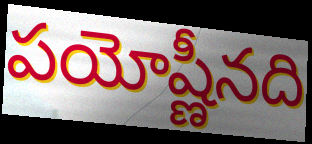
పయోష్ణీనది